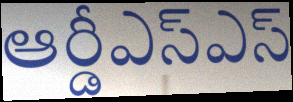
ఆర్డీఎస్ఎస్